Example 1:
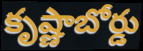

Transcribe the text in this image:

కృష్ణాబోర్డు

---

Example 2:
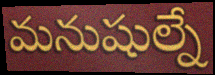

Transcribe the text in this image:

మనుషుల్నే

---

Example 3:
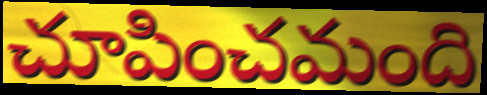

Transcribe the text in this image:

చూపించమంది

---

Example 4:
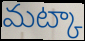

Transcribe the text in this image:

మట్కా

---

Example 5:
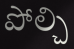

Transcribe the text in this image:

పోల్చి